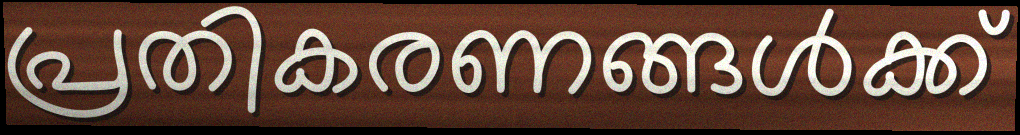
പ്രതികരണങ്ങൾക്ക്